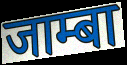
जाम्बा